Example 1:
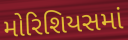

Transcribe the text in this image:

મોરિશિયસમાં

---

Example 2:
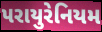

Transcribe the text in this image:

પરાયુરેનિયમ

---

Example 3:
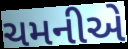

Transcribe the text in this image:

ચમનીએ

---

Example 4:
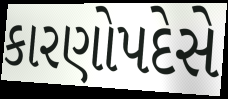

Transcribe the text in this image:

કારણોપદેસે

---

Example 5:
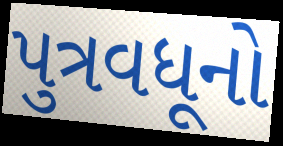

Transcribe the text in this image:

પુત્રવધૂનો